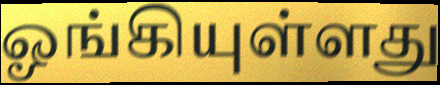
ஓங்கியுள்ளது